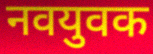
नवयुवक